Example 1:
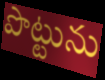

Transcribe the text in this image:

పొట్టును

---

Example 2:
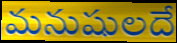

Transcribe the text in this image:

మనుషులదే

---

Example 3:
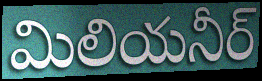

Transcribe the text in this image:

మిలియనీర్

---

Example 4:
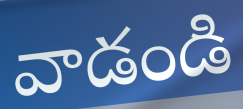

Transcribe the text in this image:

వాడండి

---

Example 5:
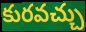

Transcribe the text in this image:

కురవచ్చు